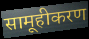
सामूहीकरण